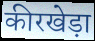
कीरखेड़ा